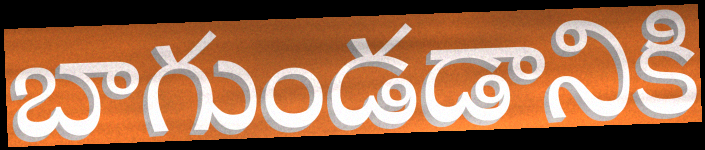
బాగుండడానికి